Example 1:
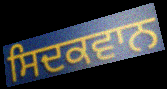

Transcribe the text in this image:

ਸਿਦਕਵਾਨ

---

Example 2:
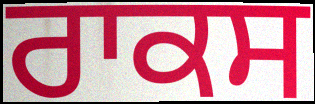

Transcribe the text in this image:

ਰਾਕਸ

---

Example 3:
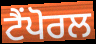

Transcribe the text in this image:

ਟੈਂਪੋਰਲ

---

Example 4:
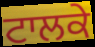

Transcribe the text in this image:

ਟਾਲਕੇ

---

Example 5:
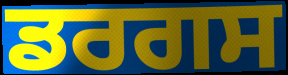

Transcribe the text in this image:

ਡਰਗਸ